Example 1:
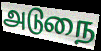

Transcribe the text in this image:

அடுநை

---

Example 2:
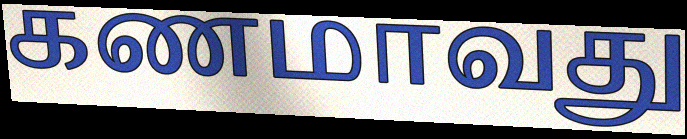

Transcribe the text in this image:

கணமாவது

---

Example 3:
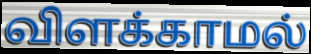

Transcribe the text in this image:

விளக்காமல்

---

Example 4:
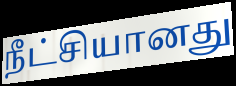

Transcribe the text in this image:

நீட்சியானது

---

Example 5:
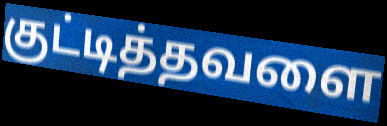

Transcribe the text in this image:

குட்டித்தவளை